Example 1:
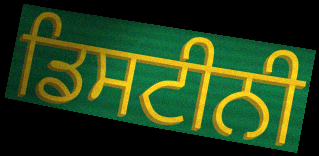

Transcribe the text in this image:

ਡਿਸਟੀਨੀ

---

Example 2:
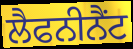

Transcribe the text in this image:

ਲੈਫਨੀਨੈਂਟ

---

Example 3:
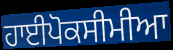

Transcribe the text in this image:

ਹਾਈਪੋਕਸੀਮੀਆ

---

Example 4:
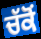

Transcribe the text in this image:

ਚੱਕੋਂ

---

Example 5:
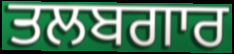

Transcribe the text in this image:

ਤਲਬਗਾਰ